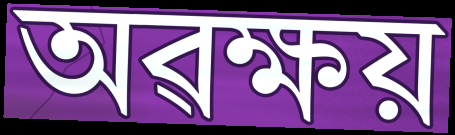
অৱক্ষয়